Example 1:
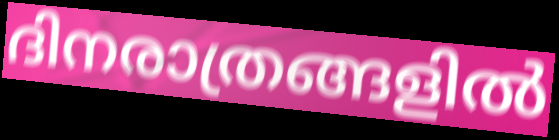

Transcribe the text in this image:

ദിനരാത്രങ്ങളിൽ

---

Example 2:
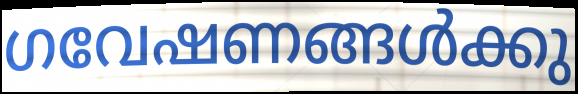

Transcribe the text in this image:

ഗവേഷണങ്ങൾക്കു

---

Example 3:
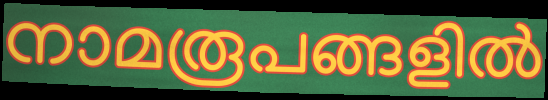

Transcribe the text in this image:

നാമരൂപങ്ങളിൽ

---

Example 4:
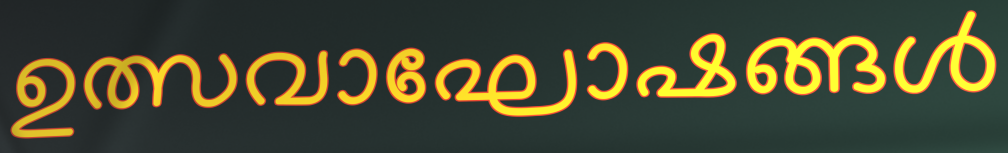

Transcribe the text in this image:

ഉത്സവാഘോഷങ്ങൾ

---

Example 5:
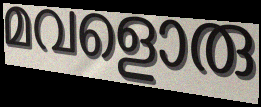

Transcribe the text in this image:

മവളൊരു